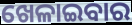
ଖେଳାଇବାର